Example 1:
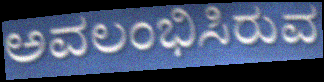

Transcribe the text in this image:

ಅವಲಂಭಿಸಿರುವ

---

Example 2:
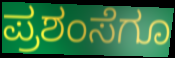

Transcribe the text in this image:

ಪ್ರಶಂಸೆಗೂ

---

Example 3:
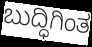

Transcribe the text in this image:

ಬುದ್ಧಿಗಿಂತ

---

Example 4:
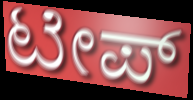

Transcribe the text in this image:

ಟೇಪ್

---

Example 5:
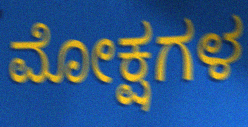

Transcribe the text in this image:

ಮೋಕ್ಷಗಳ